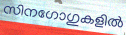
സിനഗോഗുകളിൽ